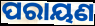
ପରାୟଣ